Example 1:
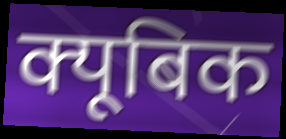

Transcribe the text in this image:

क्यूबिक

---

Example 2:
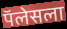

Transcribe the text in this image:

पॅलेसला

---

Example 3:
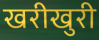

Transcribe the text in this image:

खरीखुरी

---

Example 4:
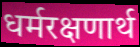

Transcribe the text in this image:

धर्मरक्षणार्थ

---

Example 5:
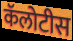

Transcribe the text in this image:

कॅलोटीस